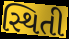
સ્થિતી